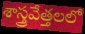
శాస్త్రవేత్తలలో